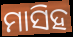
ମାସିହ